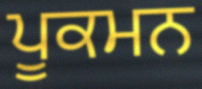
ਪੂਕਮਨ